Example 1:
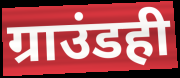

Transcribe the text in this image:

ग्राउंडही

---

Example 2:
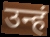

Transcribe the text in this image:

उन्हं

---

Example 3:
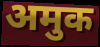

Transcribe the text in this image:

अमुक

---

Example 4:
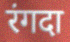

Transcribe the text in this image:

रंगदा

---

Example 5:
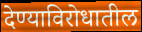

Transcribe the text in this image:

देण्याविरोधातील